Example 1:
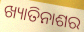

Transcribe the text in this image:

ଖ୍ୟାତିନାଶର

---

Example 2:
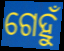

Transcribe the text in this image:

ଗେହୁଁ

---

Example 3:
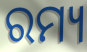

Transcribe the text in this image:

ରମ୍ୟ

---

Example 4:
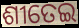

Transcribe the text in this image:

ଶୀତେଇ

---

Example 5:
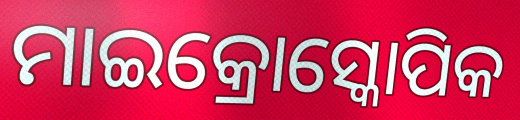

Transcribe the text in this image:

ମାଇକ୍ରୋସ୍କୋପିକ